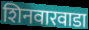
शिनवारवाडा